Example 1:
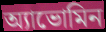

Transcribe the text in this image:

অ্যাভোমিন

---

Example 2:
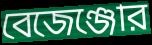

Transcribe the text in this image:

বেজেঞ্জোর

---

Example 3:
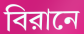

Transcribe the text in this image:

বিরানে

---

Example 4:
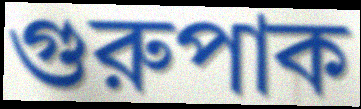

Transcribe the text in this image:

গুরুপাক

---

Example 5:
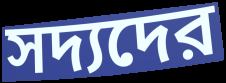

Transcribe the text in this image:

সদ্যদের